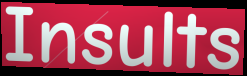
Insults